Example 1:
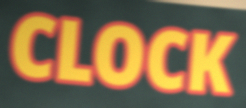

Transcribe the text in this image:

CLOCK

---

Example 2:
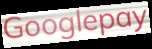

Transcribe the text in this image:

Googlepay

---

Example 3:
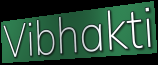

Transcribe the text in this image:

Vibhakti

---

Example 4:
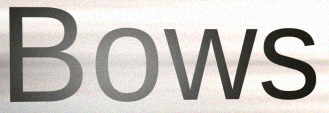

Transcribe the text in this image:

Bows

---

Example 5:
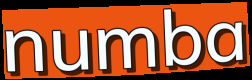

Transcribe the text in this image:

numba